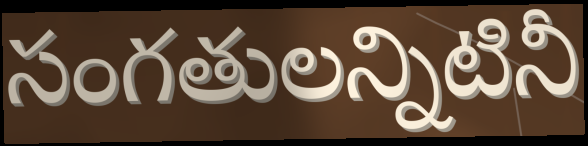
సంగతులన్నిటినీ